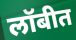
लॉबीत